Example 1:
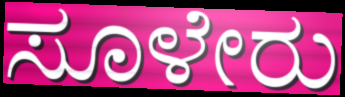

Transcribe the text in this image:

ಸೂಳೇರು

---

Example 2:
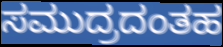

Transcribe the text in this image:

ಸಮುದ್ರದಂತಹ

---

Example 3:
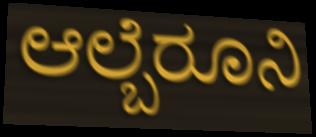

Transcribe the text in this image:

ಆಲ್ಬೆರೂನಿ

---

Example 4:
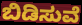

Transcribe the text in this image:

ಬಿಡಿಸುವೆ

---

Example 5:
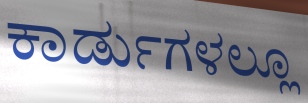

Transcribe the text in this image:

ಕಾರ್ಡುಗಳಲ್ಲೂ